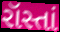
રૉસ્તાં